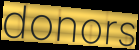
donors